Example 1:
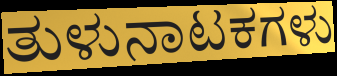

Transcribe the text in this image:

ತುಳುನಾಟಕಗಳು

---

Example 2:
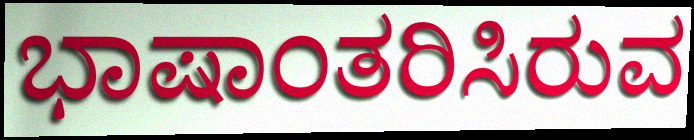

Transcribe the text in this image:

ಭಾಷಾಂತರಿಸಿರುವ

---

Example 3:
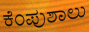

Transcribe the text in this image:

ಕೆಂಪುಶಾಲು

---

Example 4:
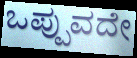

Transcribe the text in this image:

ಒಪ್ಪುವದೇ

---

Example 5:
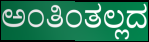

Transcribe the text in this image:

ಅಂತಿಂತಲ್ಲದ